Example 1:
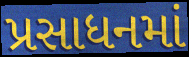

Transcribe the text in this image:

પ્રસાધનમાં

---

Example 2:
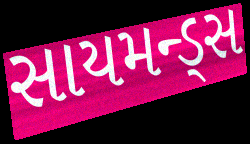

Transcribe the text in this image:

સાયમન્ડ્સ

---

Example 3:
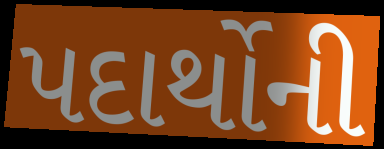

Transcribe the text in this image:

પદાર્થોની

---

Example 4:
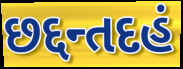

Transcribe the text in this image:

છદ્દન્તદહં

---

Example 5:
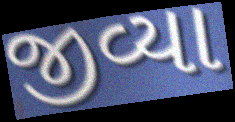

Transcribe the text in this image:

જીવ્યા